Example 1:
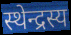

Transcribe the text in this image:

स्थेन्द्रस्य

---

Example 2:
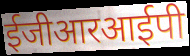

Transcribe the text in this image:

ईजीआरआईपी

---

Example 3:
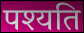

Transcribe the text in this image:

पश्यति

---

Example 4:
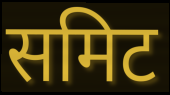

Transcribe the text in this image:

समिट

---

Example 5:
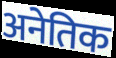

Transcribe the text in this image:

अनेतिक